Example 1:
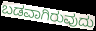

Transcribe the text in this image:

ಬಡವಾಗಿರುವುದು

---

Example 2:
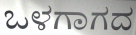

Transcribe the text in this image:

ಒಳಗಾಗದ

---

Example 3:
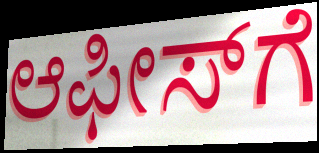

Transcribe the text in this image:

ಆಫೀಸ್‍ಗೆ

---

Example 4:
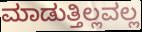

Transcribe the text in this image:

ಮಾಡುತ್ತಿಲ್ಲವಲ್ಲ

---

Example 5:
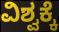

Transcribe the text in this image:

ವಿಶ್ವಕ್ಕೆ